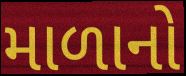
માળાનો